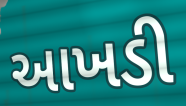
આખડી